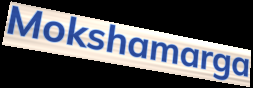
Mokshamarga